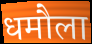
धमौला